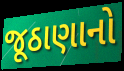
જૂઠાણાનો